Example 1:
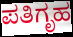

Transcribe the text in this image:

ಪತಿಗೃಹ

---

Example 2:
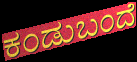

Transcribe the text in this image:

ಕಂಡುಬಂದೆ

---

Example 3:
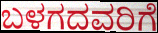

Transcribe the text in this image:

ಬಳಗದವರಿಗೆ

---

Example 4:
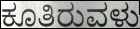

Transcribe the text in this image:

ಕೂತಿರುವಳು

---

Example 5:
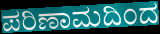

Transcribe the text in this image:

ಪರಿಣಾಮದಿಂದ